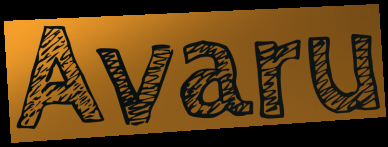
Avaru